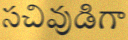
సచివుడిగా